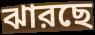
ঝারছে